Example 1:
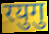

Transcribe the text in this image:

रयुगु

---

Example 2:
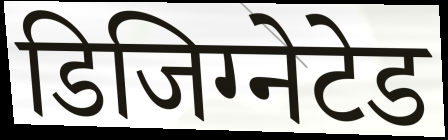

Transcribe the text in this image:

डिजिग्नेटेड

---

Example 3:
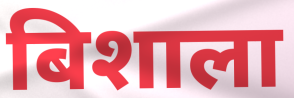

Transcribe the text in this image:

बिशाला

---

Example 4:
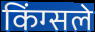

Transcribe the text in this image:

किंग्सले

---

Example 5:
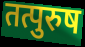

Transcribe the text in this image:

तत्पुरुष